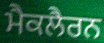
ਮੈਕਲੈਰਨ